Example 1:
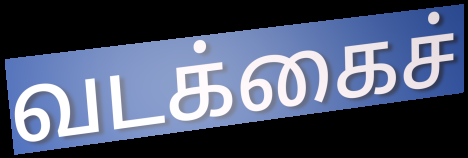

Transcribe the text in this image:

வடக்கைச்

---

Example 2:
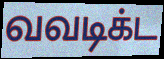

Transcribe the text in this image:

வவடிக்ட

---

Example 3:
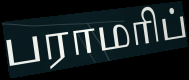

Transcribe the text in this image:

பராமரிப்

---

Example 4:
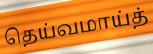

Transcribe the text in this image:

தெய்வமாய்த்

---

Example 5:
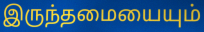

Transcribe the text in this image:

இருந்தமையையும்